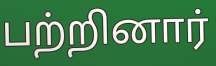
பற்றினார்